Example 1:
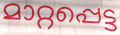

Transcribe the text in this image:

മാറ്റപ്പെട്ട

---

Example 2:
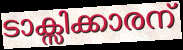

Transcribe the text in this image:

ടാക്സിക്കാരന്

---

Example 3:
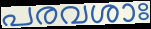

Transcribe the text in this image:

പരവശാഃ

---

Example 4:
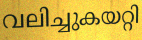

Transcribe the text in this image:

വലിച്ചുകയറ്റി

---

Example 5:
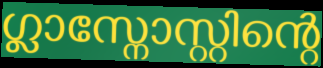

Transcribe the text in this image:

ഗ്ലാസ്നോസ്റ്റിന്റെ